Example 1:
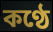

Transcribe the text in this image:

কণ্ঠে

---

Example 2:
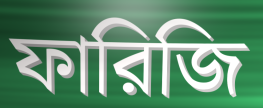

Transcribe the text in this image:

ফারিজি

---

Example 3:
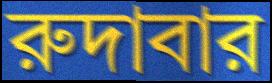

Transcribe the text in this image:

রুদাবার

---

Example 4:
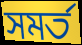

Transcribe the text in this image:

সমর্ত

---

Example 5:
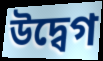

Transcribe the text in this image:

উদ্বেগ